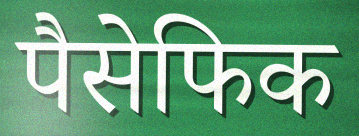
पैसेफिक